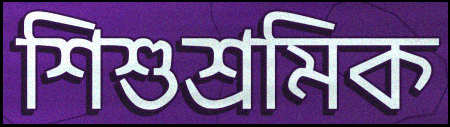
শিশুশ্রমিক